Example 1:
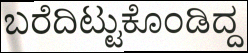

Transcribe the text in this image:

ಬರೆದಿಟ್ಟುಕೊಂಡಿದ್ದ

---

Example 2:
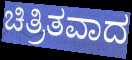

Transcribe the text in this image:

ಚಿತ್ರಿತವಾದ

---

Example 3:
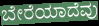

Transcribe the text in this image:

ಬೇರೆಯಾದೆವು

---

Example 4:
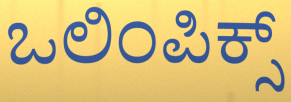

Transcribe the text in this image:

ಒಲಿಂಪಿಕ್ಸ್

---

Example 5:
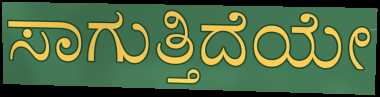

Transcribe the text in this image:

ಸಾಗುತ್ತಿದೆಯೇ